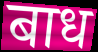
बाध